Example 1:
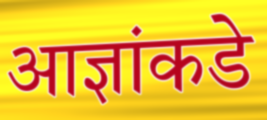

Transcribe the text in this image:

आज्ञांकडे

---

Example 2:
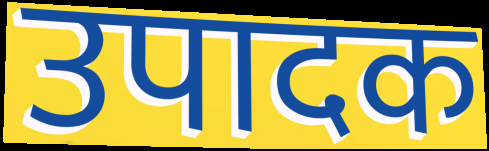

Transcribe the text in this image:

उपादक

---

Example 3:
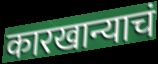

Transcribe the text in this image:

कारखान्याचं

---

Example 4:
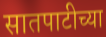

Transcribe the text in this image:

सातपाटीच्या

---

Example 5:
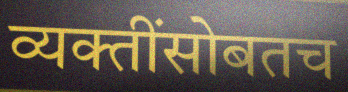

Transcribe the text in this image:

व्यक्तींसोबतच